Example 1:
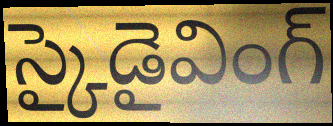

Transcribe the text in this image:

స్కైడైవింగ్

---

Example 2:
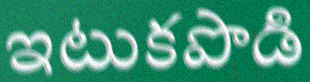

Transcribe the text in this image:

ఇటుకపొడి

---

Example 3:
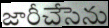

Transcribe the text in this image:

జారీచేసెను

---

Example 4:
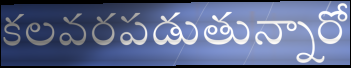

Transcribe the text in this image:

కలవరపడుతున్నారో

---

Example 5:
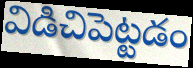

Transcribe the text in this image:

విడిచిపెట్టడం